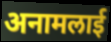
अनामलाई